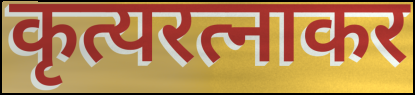
कृत्यरत्नाकर